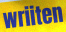
wriiten